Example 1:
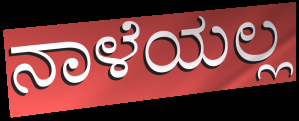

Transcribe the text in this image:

ನಾಳೆಯಲ್ಲ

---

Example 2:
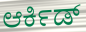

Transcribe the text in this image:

ಆರ್ಕಿಡ್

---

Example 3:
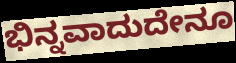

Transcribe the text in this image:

ಭಿನ್ನವಾದುದೇನೂ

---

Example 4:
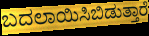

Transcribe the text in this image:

ಬದಲಾಯಿಸಿಬಿಡುತ್ತಾರೆ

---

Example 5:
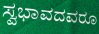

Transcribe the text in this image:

ಸ್ವಭಾವದವರೂ